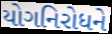
યોગનિરોધને